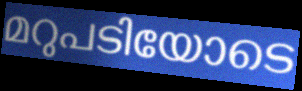
മറുപടിയോടെ